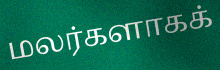
மலர்களாகக்